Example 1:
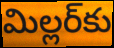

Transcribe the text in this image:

మిల్లర్‌కు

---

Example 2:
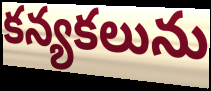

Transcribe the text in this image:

కన్యకలును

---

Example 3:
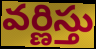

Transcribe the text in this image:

వర్ణిస్తు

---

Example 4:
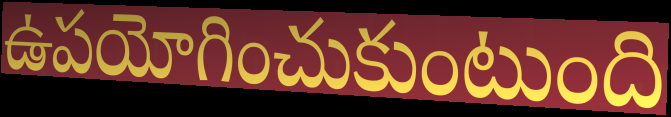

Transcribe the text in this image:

ఉపయోగించుకుంటుంది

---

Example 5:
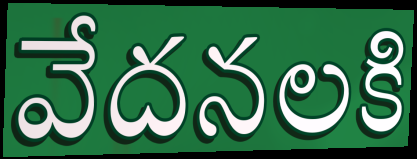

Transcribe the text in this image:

వేదనలకి